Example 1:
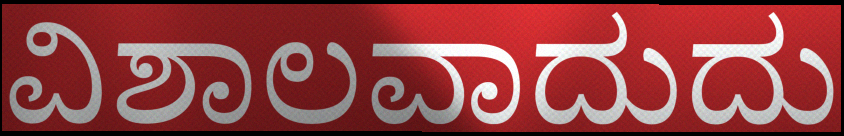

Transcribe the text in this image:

ವಿಶಾಲವಾದುದು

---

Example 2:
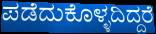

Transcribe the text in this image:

ಪಡೆದುಕೊಳ್ಳದಿದ್ದರೆ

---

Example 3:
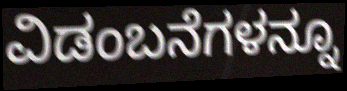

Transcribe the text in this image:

ವಿಡಂಬನೆಗಳನ್ನೂ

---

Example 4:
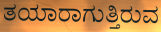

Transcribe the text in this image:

ತಯಾರಾಗುತ್ತಿರುವ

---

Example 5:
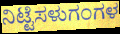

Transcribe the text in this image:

ನಿಟ್ಟೆಸಳುಗಂಗಳ